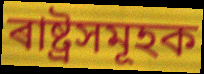
ৰাষ্ট্ৰসমূহক